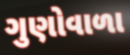
ગુણોવાળા